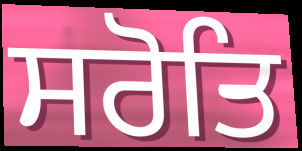
ਸਰੋਤਿ